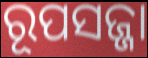
ରୂପସଜ୍ଜା